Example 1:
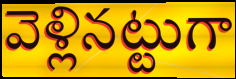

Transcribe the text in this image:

వెళ్లినట్టుగా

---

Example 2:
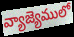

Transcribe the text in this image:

వ్యాజ్యెములో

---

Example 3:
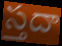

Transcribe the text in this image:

స్తదా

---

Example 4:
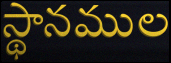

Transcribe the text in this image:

స్థానముల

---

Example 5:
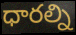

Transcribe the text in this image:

ధారల్ని